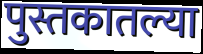
पुस्तकातल्या